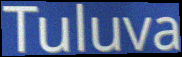
Tuluva